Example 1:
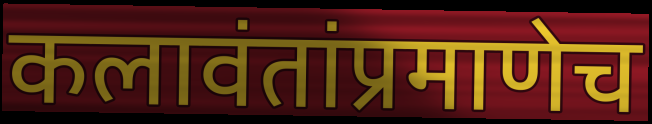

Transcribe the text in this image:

कलावंतांप्रमाणेच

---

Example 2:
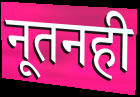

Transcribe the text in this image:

नूतनही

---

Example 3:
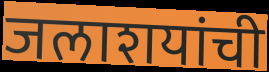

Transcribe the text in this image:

जलाशयांची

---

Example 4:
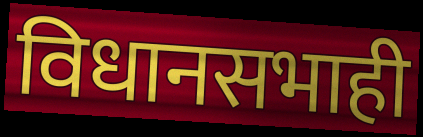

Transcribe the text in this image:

विधानसभाही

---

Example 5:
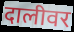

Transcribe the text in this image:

दालीवर